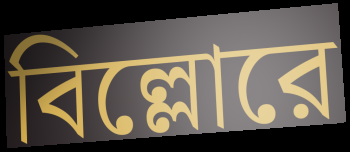
বিল্লোরে